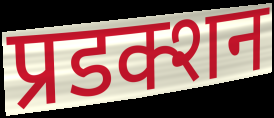
प्रडक्शन